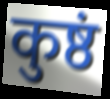
कुष्ठं